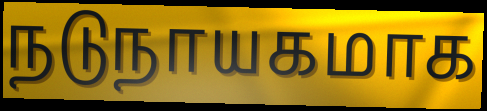
நடுநாயகமாக